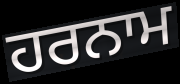
ਹਰਨਾਮ